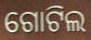
ଗୋଟିଲ